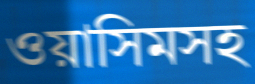
ওয়াসিমসহ